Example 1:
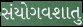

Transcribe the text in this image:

સંયોગવશાતુ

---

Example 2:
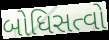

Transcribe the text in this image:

બોધિસત્વો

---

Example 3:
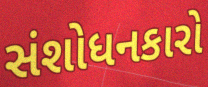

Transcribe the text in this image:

સંશોધનકારો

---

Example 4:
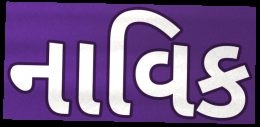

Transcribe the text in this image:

નાવિક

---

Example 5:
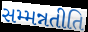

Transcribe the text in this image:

સમ્મન્નતીતિ